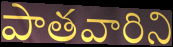
పాతవారిని